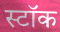
स्टॉक